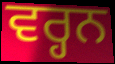
ਵਰ੍ਹਨ